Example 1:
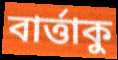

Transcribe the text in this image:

বার্ত্তাকু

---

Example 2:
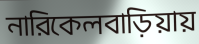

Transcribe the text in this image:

নারিকেলবাড়িয়ায়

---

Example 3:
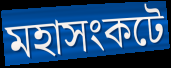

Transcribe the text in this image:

মহাসংকটে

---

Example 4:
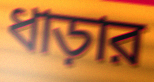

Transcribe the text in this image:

ধাড়ার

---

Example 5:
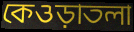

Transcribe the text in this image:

কেওড়াতলা